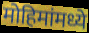
मोहिमांमध्ये